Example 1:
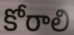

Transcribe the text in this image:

కోరాలి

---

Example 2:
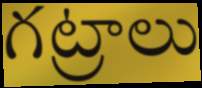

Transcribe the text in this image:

గట్రాలు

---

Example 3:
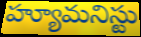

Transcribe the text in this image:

హ్యూమనిస్టు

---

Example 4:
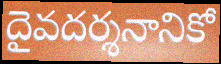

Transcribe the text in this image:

దైవదర్శనానికో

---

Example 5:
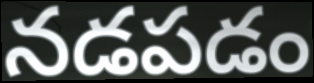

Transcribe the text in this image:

నడపడం